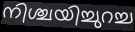
നിശ്ചയിച്ചുറച്ച